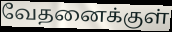
வேதனைக்குள்